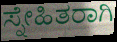
ಸ್ನೇಹಿತರಾಗಿ